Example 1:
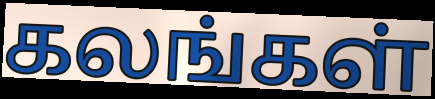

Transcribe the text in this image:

கலங்கள்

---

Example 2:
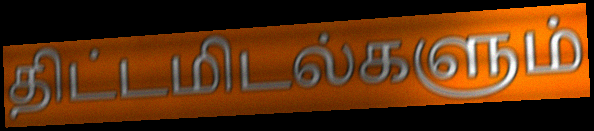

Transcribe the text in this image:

திட்டமிடல்களும்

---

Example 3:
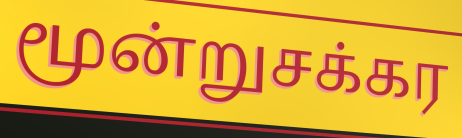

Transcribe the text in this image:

மூன்றுசக்கர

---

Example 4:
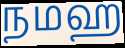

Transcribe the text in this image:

நமஹ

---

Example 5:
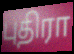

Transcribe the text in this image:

புதிரா